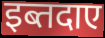
इब्तदाए